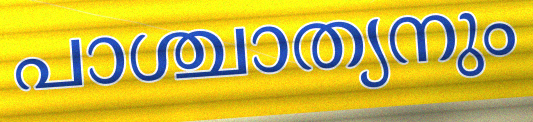
പാശ്ചാത്യനും